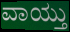
ವಾಯ್ತು